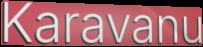
Karavanu